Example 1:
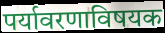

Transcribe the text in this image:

पर्यावरणाविषयक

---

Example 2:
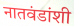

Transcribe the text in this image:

नातवंडांशी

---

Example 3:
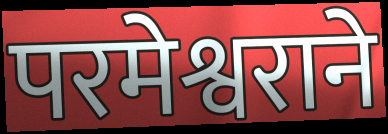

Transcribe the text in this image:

परमेश्वराने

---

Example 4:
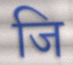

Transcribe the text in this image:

जि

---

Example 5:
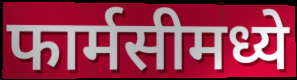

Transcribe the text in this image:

फार्मसीमध्ये